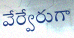
వేర్వేరుగా